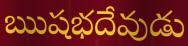
ఋషభదేవుడు